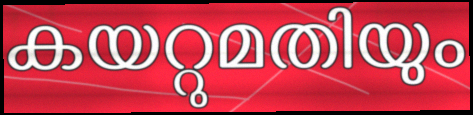
കയറ്റുമതിയും